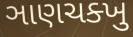
ઞાણચક્ખુ